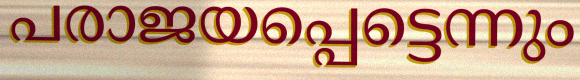
പരാജയപ്പെട്ടെന്നും